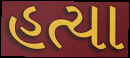
હત્યા